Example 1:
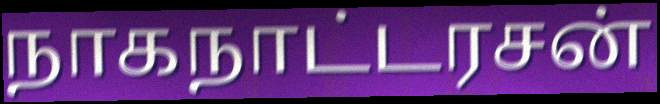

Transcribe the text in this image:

நாகநாட்டரசன்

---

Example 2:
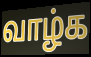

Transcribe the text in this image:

வாழ்க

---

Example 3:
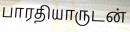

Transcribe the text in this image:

பாரதியாருடன்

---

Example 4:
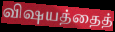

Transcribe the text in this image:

விஷயத்தைத்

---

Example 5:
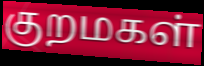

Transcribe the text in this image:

குறமகள்